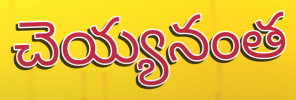
చెయ్యనంత